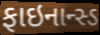
ફાઇનાન્સ્ડ